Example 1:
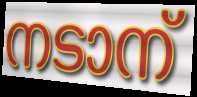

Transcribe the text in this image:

നടാന്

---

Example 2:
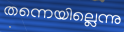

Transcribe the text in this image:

തന്നെയില്ലെന്നു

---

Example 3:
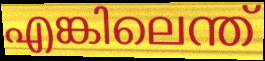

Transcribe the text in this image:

എങ്കിലെന്ത്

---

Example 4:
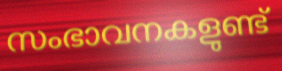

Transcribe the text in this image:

സംഭാവനകളുണ്ട്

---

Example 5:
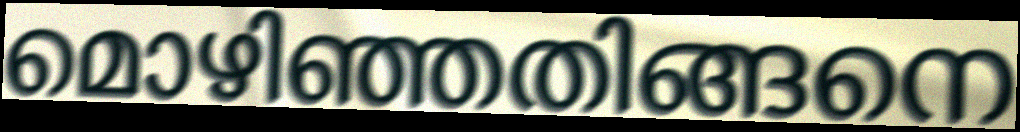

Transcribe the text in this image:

മൊഴിഞ്ഞതിങ്ങനെ